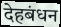
देहबंधन